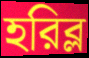
হরিব্ল